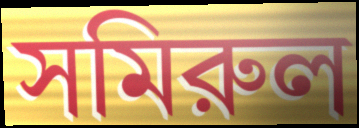
সমিরুল